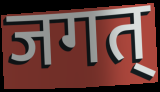
जगत्